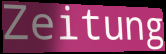
Zeitung